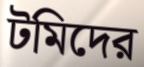
টমিদের